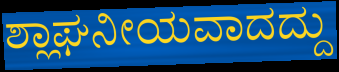
ಶ್ಲಾಘನೀಯವಾದದ್ದು